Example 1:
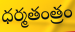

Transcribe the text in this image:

ధర్మతంత్రం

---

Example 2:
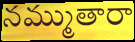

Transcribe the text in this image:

నమ్ముతారా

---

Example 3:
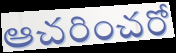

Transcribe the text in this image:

ఆచరించరో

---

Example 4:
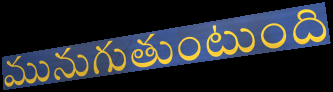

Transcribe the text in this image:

మునుగుతుంటుంది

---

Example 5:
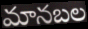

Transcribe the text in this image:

మానబల